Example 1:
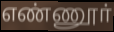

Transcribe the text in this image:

எண்ணூர்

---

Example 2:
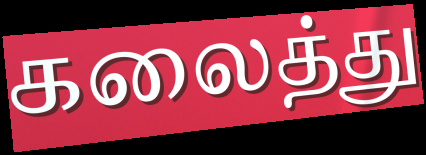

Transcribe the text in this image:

கலைத்து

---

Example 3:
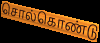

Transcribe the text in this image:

சொல்கொண்டு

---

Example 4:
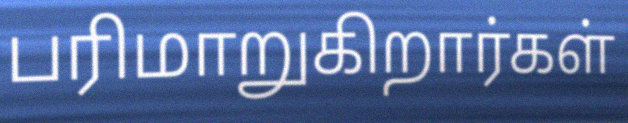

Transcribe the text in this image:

பரிமாறுகிறார்கள்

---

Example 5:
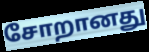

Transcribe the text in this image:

சோறானது